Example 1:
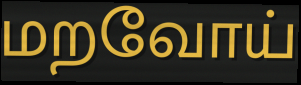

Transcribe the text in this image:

மறவோய்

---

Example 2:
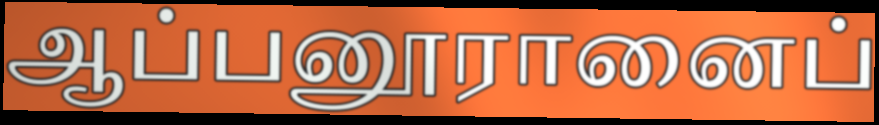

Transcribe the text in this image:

ஆப்பனூரானைப்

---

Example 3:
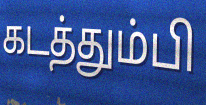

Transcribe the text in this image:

கடத்தும்பி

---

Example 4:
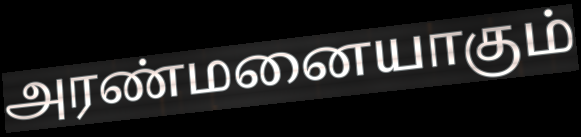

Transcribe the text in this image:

அரண்மனையாகும்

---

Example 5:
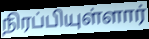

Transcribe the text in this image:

நிரப்பியுள்ளார்